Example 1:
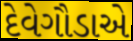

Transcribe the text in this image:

દેવેગૌડાએ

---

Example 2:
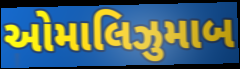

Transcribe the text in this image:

ઓમાલિઝુમાબ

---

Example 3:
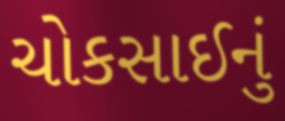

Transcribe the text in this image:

ચોકસાઈનું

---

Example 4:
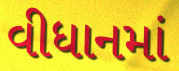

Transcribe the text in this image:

વીધાનમાં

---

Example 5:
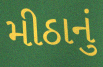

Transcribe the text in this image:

મીઠાનું